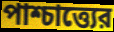
পাশ্চাত্ত্যের